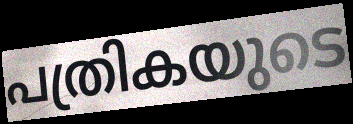
പത്രികയുടെ